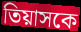
তিয়াসকে